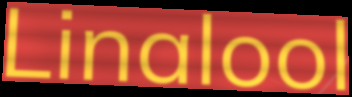
Linalool